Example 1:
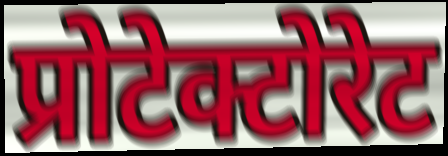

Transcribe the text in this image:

प्रोटेक्टोरेट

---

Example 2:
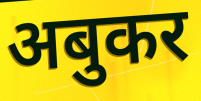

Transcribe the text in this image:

अबुकर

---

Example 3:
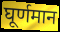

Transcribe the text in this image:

घूर्णमान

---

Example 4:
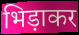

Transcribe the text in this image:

भिड़ाकर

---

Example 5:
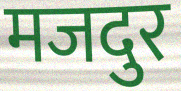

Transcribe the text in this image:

मजदुर